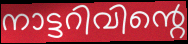
നാട്ടറിവിന്റെ